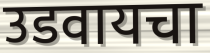
उडवायचा